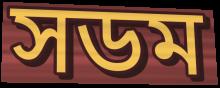
সডম